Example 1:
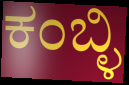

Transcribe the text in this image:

ಕಂಬ್ಳಿ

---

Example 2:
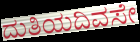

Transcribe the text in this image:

ದುತಿಯದಿವಸೇ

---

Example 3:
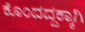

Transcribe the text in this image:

ಕೊಂದದ್ದಕ್ಕಾಗಿ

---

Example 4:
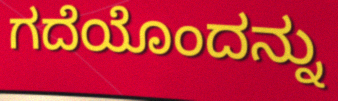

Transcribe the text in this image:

ಗದೆಯೊಂದನ್ನು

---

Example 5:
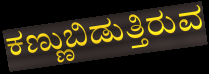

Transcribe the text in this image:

ಕಣ್ಣುಬಿಡುತ್ತಿರುವ